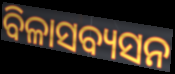
ବିଳାସବ୍ୟସନ